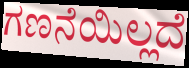
ಗಣನೆಯಿಲ್ಲದೆ